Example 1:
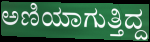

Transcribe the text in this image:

ಅಣಿಯಾಗುತ್ತಿದ್ದ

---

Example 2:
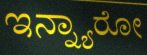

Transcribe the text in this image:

ಇನ್ನ್ಯಾರೋ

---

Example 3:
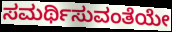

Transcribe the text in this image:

ಸಮರ್ಥಿಸುವಂತೆಯೇ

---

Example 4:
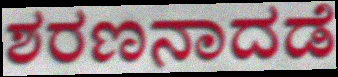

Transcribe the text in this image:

ಶರಣನಾದಡೆ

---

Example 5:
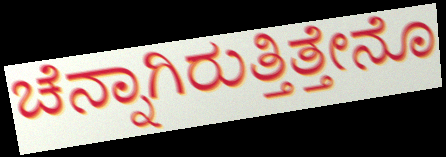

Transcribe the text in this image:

ಚೆನ್ನಾಗಿರುತ್ತಿತ್ತೇನೊ